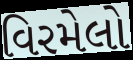
વિરમેલો